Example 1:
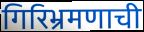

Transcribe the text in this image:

गिरिभ्रमणाची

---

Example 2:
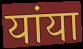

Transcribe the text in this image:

यांया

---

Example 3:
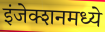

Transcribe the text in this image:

इंजेक्शनमध्ये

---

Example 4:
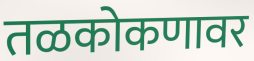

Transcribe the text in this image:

तळकोकणावर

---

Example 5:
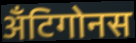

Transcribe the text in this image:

अँटिगोनस